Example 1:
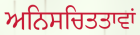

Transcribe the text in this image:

ਅਨਿਸਚਿਤਤਾਵਾਂ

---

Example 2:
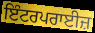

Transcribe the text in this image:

ਇੰਟਰਪਰਾਈਜ਼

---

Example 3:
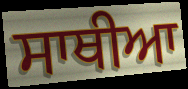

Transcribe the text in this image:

ਸਾਥੀਆ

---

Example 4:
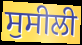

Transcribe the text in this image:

ਸੁਸੀਲੀ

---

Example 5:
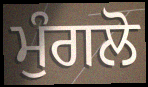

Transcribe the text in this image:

ਮੁੰਗਲੋ